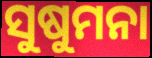
ସୁଷୁମନା